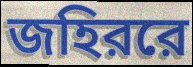
জহিররে